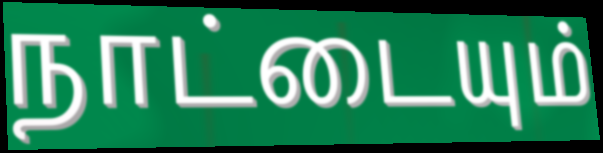
நாட்டையும்